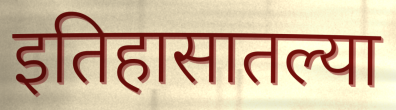
इतिहासातल्या